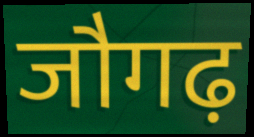
जौगढ़